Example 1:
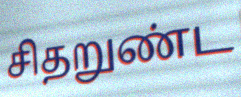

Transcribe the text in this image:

சிதறுண்ட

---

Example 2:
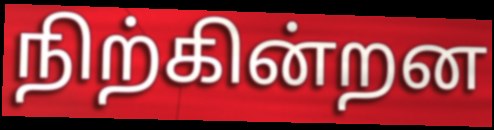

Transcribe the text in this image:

நிற்கின்றன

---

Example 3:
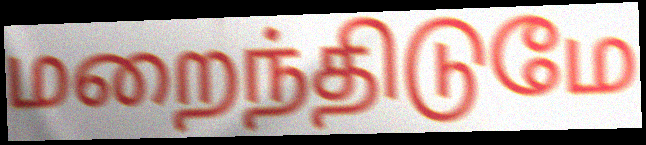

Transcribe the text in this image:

மறைந்திடுமே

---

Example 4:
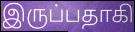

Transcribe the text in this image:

இருப்பதாகி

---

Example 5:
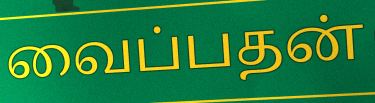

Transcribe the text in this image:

வைப்பதன்